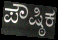
ಪೌಷ್ಠಿಕ